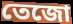
তেজো